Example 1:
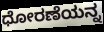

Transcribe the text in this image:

ಧೋರಣೆಯನ್ನ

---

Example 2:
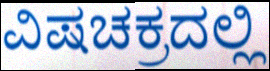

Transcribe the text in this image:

ವಿಷಚಕ್ರದಲ್ಲಿ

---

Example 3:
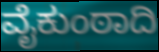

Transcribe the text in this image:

ವೈಕುಂಠಾದಿ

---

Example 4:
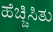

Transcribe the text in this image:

ಹೆಚ್ಚಿಸಿತು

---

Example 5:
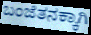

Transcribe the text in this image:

ಬಂಜೆತನಕ್ಕಾಗಿ